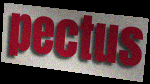
pectus